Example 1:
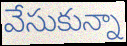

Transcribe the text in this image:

వేసుకున్నా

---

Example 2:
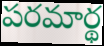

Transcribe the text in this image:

పరమార్థ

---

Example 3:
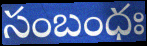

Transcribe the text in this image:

సంబంధః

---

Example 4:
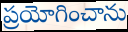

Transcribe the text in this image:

ప్రయోగించాను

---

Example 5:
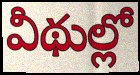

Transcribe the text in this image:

వీథుల్లో